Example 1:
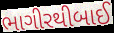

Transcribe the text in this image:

ભાગીરથીબાઈ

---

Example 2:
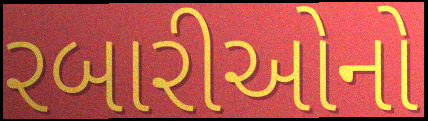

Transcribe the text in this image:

રબારીઓનો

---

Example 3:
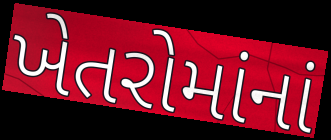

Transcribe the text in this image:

ખેતરોમાંનાં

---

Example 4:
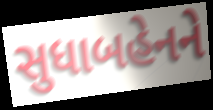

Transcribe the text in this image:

સુધાબહેનને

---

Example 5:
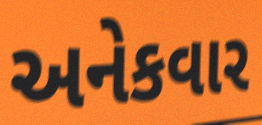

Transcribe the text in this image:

અનેકવાર